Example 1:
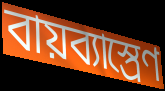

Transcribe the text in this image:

বায়ব্যাস্ত্রেণ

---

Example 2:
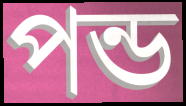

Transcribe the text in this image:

পন্ড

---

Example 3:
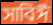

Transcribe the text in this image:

সাবিঈ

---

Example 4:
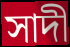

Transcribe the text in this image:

সাদী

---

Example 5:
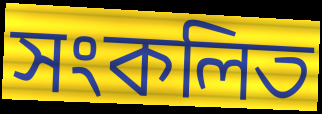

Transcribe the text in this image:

সংকলিত